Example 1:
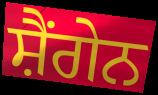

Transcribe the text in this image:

ਸ਼ੈਂਗੇਨ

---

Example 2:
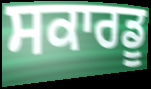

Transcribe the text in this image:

ਸਕਾਰਡੂ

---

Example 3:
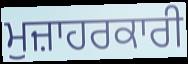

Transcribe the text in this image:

ਮੁਜ਼ਾਹਰਕਾਰੀ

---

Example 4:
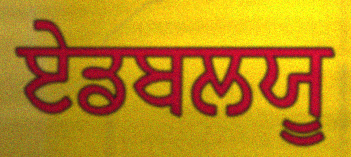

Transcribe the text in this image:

ਏਡਬਲਯੂ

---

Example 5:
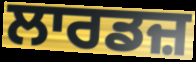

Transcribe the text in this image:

ਲਾਰਡਜ਼